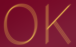
OK